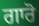
ਗਾਰੋ